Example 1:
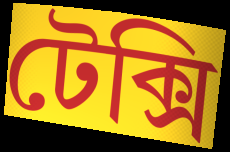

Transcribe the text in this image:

টেক্সি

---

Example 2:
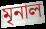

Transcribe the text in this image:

মৃনাল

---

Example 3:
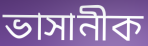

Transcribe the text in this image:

ভাসানীক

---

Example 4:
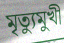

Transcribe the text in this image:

মৃত্যুমুখী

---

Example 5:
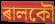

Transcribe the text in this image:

ৰালকৌ